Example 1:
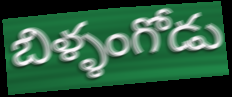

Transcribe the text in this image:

బిళ్ళంగోడు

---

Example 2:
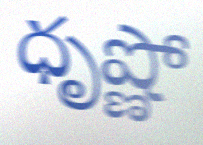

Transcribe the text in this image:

ధృష్ణో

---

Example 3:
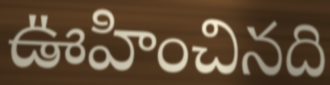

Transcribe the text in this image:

ఊహించినది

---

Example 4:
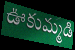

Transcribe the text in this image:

ఊకుమ్మడి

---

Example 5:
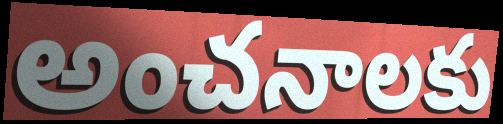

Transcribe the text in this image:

అంచనాలకు